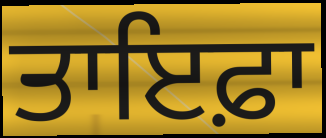
ਤਾਇਫ਼ਾ